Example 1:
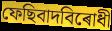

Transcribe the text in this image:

ফেছিবাদবিৰোধী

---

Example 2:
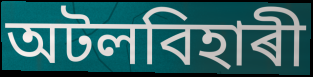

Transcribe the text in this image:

অটলবিহাৰী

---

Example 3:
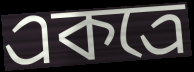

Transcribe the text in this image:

একত্ৰে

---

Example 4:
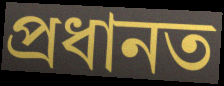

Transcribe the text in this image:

প্ৰধানত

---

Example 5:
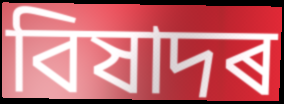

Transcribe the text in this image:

বিষাদৰ